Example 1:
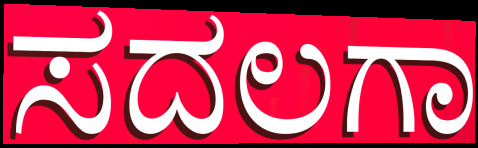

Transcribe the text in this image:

ಸದಲಗಾ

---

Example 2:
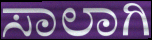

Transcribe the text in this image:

ಸಾಲಾಗಿ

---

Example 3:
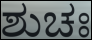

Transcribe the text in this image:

ಶುಚಃ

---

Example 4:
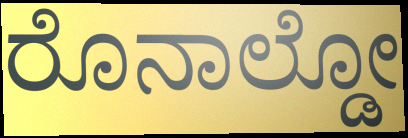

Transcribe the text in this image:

ರೊನಾಲ್ಡೋ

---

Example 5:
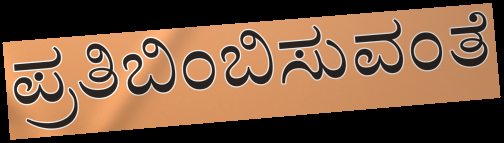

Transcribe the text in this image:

ಪ್ರತಿಬಿಂಬಿಸುವಂತೆ